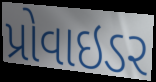
પ્રોવાઇડર